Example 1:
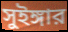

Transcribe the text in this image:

সুইঙ্গার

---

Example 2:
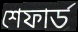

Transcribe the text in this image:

শেফার্ড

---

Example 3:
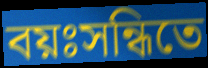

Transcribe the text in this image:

বয়ঃসন্ধিতে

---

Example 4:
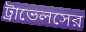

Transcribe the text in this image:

ট্রাভেলসের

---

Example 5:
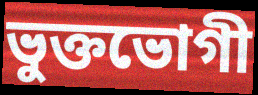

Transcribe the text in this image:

ভুক্তভোগী